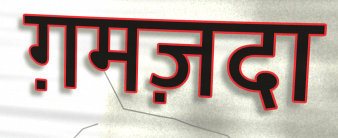
ग़मज़दा